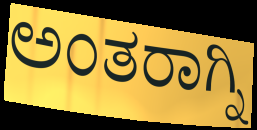
ಅಂತರಾಗ್ನಿ